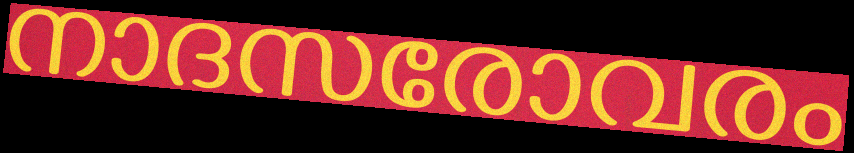
നാദസരോവരം